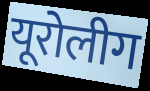
यूरोलीग